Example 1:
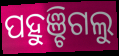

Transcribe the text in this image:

ପହୁଞ୍ଚିଗଲୁ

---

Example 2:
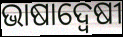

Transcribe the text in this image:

ଭାଷାଦ୍ଵେଷୀ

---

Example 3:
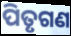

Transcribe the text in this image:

ପିତୃଗଣ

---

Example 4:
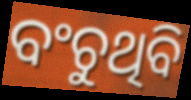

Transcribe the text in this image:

ବଂଚୁଥିବି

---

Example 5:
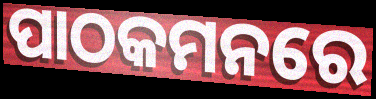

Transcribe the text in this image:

ପାଠକମନରେ